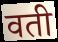
वती